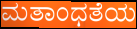
ಮತಾಂಧತೆಯ